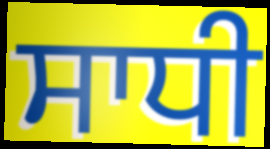
ਸਾਧੀ